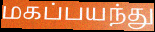
மகப்பயந்து